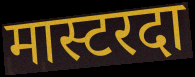
मास्टरदा